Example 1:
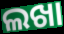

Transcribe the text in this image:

ଲଖା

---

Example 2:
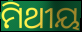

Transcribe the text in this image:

ମିଥୀୟ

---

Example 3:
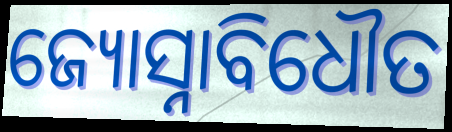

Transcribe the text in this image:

ଜ୍ୟୋସ୍ନାବିଧୌତ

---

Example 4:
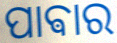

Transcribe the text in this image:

ପାଵାର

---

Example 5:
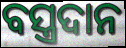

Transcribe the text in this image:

ବସ୍ତ୍ରଦାନ